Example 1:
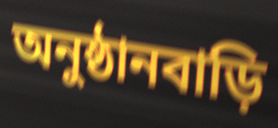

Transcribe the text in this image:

অনুষ্ঠানবাড়ি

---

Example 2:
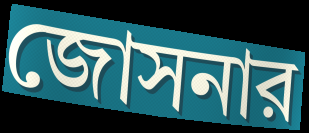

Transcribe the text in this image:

জোসনার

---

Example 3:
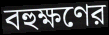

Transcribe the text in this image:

বহুক্ষণের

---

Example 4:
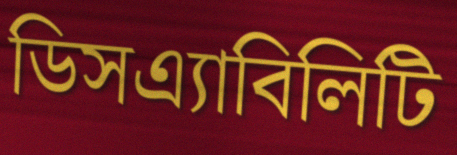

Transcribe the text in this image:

ডিসএ্যাবিলিটি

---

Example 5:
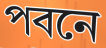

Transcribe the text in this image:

পবনে